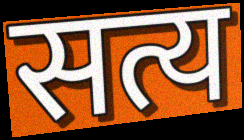
सत्य